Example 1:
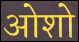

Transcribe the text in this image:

ओशो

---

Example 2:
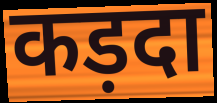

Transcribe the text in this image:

कड़दा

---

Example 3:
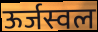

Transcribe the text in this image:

ऊर्जस्वल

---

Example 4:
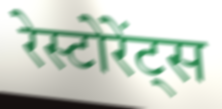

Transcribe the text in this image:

रेस्‍टोरेंट्स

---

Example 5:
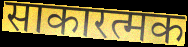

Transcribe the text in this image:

साकारत्मक